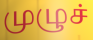
முழுச்